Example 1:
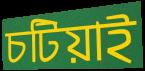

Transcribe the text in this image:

চটিয়াই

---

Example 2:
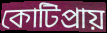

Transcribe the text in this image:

কোটিপ্ৰায়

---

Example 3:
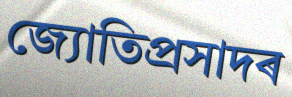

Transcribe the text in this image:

জ্যোতিপ্ৰসাদৰ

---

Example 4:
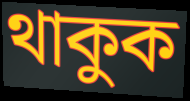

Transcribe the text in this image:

থাকুক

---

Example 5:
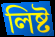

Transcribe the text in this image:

লিষ্ট